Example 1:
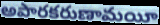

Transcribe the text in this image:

అపారకరుణామయీ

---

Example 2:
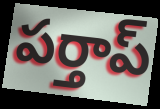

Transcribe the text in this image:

పర్తాప్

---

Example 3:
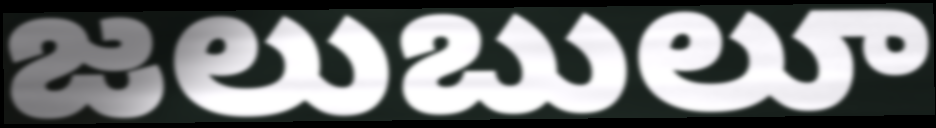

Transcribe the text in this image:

జలుబులూ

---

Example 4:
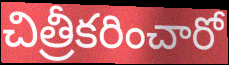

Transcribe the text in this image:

చిత్రీకరించారో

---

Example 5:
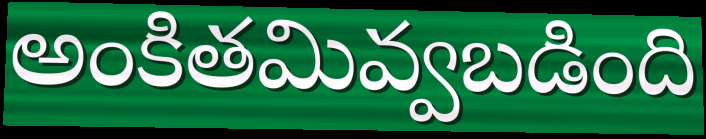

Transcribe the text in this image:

అంకితమివ్వబడింది